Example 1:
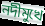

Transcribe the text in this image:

নদীমুখে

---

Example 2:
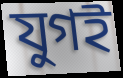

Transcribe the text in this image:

যুগই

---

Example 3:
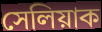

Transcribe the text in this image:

সেলিয়াক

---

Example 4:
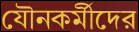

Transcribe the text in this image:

যৌনকর্মীদের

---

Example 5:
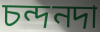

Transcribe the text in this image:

চন্দনদা